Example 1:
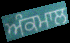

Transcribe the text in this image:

ਅੰਕਮਾਲ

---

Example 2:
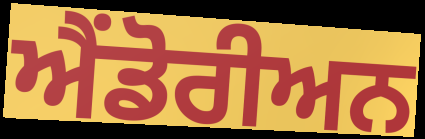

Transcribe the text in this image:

ਐਂਡੋਰੀਅਨ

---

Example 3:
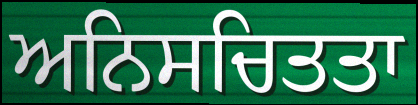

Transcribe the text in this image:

ਅਨਿਸਚਿਤਤਾ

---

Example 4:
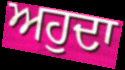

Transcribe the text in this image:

ਅਹੁਦਾ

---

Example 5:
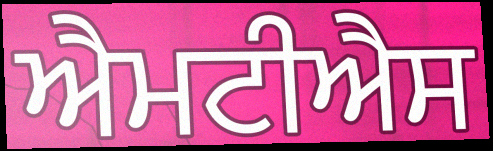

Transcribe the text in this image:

ਐਮਟੀਐਸ